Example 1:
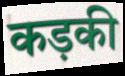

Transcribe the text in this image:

कड़की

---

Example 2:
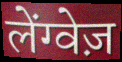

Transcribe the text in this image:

लेंग्वेज़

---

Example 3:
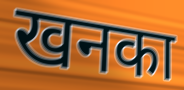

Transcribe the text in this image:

खनका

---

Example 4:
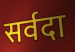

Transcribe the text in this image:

सर्वदा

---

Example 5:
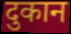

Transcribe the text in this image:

दुकान